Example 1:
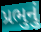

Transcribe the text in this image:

પ્રભુનું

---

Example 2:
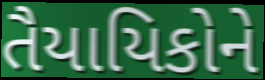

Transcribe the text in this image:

તૈયાયિકોને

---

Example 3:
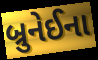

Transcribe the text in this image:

બ્રુનેઈના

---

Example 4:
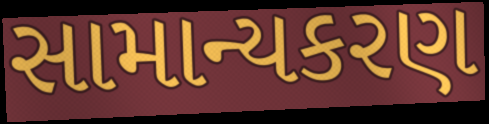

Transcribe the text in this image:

સામાન્યકરણ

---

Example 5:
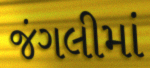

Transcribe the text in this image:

જંગલીમાં